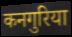
कनगुरिया